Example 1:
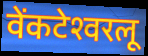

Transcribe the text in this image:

वेंकटेश्वरलू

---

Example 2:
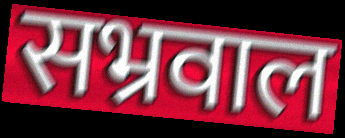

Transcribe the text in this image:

सभ्रवाल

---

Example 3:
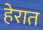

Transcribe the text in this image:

हेरात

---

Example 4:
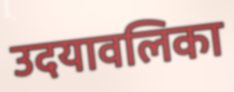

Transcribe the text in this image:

उदयावलिका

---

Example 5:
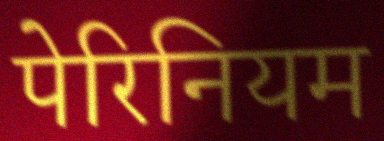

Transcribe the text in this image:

पेरिनियम